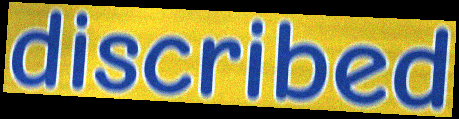
discribed